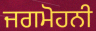
ਜਗਮੋਹਨੀ